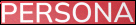
PERSONA